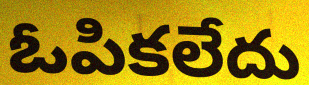
ఓపికలేదు